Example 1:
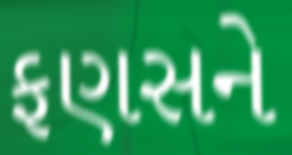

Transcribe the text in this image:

ફણસને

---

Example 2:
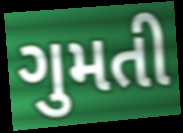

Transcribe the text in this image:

ગુમતી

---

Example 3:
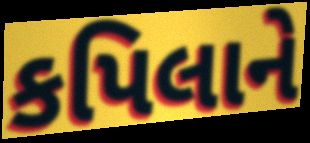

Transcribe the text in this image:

કપિલાને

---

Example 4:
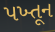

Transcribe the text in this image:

પખ્તૂન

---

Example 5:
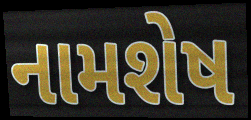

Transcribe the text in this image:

નામશેષ